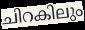
ചിറകിലും